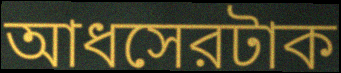
আধসেরটাক